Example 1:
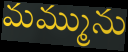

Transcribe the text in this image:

మమ్మును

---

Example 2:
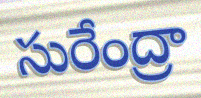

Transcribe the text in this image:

సురేంద్రా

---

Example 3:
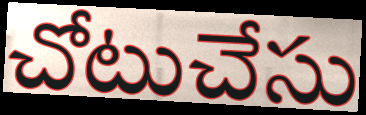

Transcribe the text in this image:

చోటుచేసు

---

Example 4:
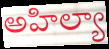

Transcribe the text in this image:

అహిల్యా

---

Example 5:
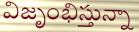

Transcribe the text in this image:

విజృంభిస్తున్నా